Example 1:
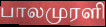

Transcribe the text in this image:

பாலமுரளி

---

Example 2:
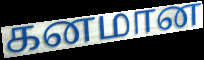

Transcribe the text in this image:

கனமான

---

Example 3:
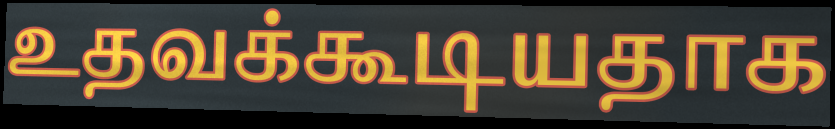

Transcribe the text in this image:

உதவக்கூடியதாக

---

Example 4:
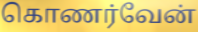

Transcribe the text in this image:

கொணர்வேன்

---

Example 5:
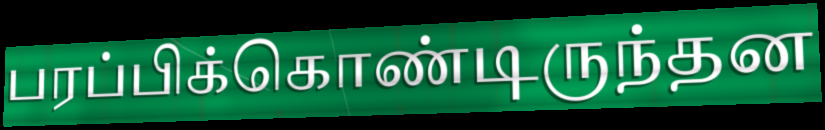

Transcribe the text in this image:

பரப்பிக்கொண்டிருந்தன